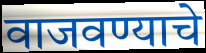
वाजवण्याचे